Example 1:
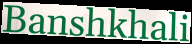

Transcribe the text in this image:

Banshkhali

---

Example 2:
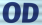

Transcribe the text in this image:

OD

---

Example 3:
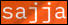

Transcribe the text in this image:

sajja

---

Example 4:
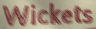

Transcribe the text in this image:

Wickets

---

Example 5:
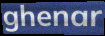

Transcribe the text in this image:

ghenar